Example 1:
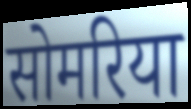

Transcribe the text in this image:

सोमरिया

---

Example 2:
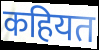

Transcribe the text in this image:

कहियत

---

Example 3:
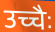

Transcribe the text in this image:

उच्चैः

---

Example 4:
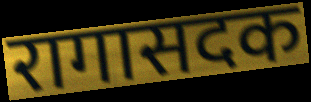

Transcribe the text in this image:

रागासदक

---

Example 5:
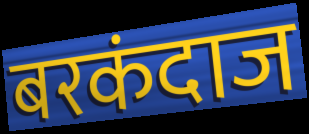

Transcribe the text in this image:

बरकंदाज